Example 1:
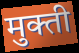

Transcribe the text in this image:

मुक्ती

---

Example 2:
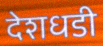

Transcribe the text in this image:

देशधडी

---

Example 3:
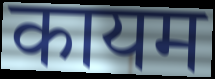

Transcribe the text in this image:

कायम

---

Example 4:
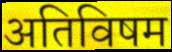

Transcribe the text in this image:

अतिविषम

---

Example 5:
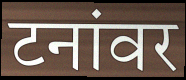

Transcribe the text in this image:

टनांवर